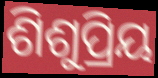
ଶିଶୁପ୍ରିୟ